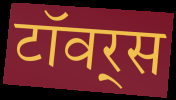
टॉवर्स